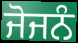
ਜੋਜਨੰ